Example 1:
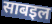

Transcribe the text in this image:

साबइल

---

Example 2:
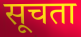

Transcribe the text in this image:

सूचता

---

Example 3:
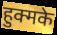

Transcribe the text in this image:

हुक्मके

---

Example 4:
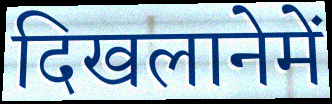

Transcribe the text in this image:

दिखलानेमें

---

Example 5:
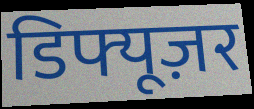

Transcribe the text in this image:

डिफ्यूज़र